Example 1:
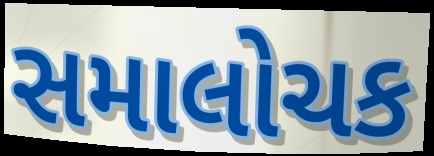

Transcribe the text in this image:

સમાલોચક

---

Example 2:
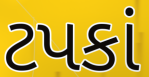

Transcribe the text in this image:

ટપકાં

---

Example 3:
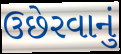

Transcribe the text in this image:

ઉછેરવાનું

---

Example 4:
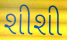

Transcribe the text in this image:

શીશી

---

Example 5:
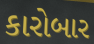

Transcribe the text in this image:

કારોબાર